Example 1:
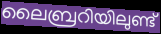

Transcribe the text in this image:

ലൈബ്രറിയിലുണ്ട്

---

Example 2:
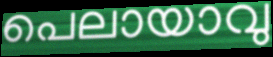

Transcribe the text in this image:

പെലായാവു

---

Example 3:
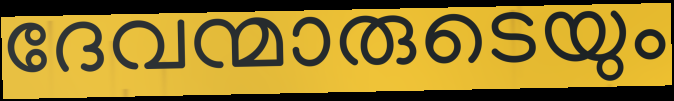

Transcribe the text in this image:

ദേവന്മാരുടെയും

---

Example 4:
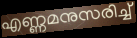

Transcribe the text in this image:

എണ്ണമനുസരിച്ച്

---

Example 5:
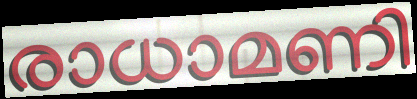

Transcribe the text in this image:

രാധാമണി